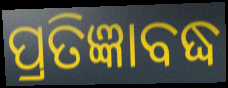
ପ୍ରତିଜ୍ଞାବଦ୍ଧ